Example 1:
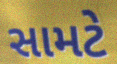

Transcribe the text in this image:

સામટે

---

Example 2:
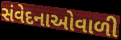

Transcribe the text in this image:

સંવેદનાઓવાળી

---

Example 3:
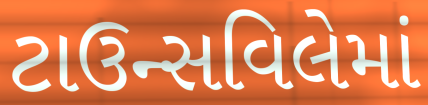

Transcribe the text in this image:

ટાઉન્સવિલેમાં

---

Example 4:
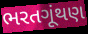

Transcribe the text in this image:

ભરતગૂંથણ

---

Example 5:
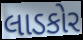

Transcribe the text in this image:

લાડકોર